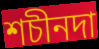
শচীনদা